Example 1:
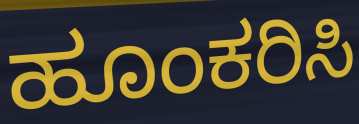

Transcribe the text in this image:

ಹೂಂಕರಿಸಿ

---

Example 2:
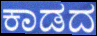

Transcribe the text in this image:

ಕಾಡದ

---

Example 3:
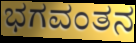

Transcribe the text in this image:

ಭಗವಂತನ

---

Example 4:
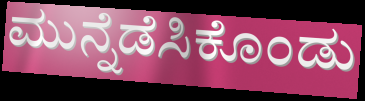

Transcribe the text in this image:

ಮುನ್ನೆಡೆಸಿಕೊಂಡು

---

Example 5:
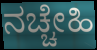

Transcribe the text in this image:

ನಚ್ಚೇಹಿ